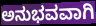
ಅನುಭವವಾಗಿ